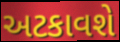
અટકાવશે